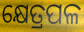
କ୍ଷେତ୍ରପଳ